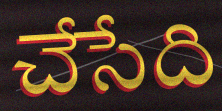
చేసేది